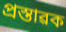
প্ৰস্তাৱক